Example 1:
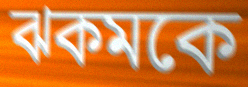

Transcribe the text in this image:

ঝকমকে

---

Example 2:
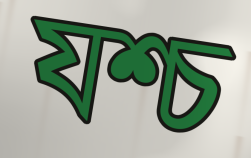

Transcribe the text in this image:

যশ্চ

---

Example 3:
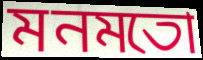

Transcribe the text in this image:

মনমতো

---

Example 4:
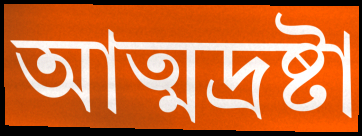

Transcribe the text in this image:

আত্মদ্রষ্টা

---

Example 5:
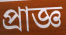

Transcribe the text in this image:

প্রাজ্ঞ